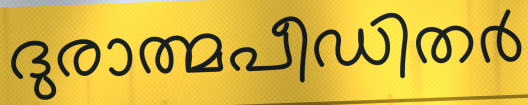
ദുരാത്മപീഡിതർ